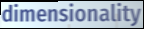
dimensionality